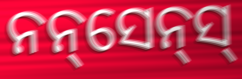
ନନ୍‌ସେନ୍‌ସ୍